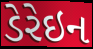
ડેરેઇન